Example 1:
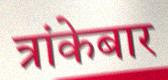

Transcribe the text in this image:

त्रांकेबार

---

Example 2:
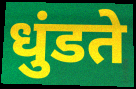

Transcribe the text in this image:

धुंडते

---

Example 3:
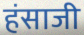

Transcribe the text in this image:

हंसाजी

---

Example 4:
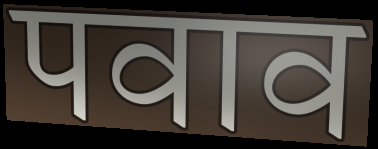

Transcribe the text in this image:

पवाव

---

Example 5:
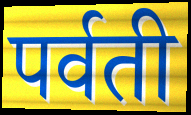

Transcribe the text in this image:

पर्वती